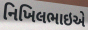
નિખિલભાઇએ